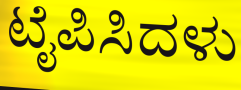
ಟೈಪಿಸಿದಳು